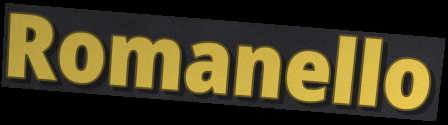
Romanello